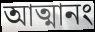
আত্মানং